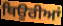
ਥਿਉਰੀਆਂ